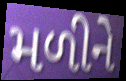
મળીને